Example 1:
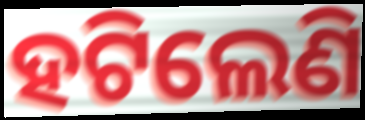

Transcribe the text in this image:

ହଟିଲେଣି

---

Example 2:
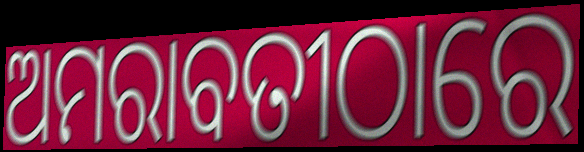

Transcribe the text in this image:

ଅମରାବତୀଠାରେ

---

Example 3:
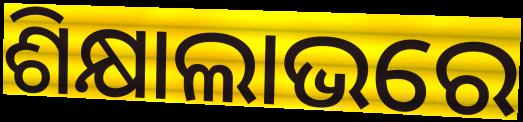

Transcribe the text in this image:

ଶିକ୍ଷାଲାଭରେ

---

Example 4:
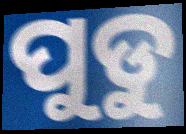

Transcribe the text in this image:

ପୁଡୁ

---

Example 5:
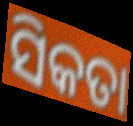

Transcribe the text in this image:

ସିକତା